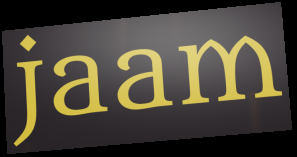
jaam